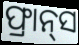
ଫ୍ରାନ୍‌ସ